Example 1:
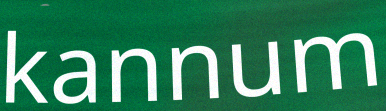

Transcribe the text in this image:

kannum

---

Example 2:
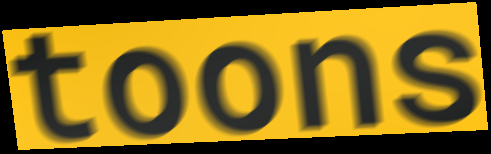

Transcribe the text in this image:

toons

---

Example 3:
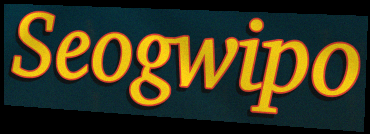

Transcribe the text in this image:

Seogwipo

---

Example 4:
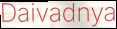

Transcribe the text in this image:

Daivadnya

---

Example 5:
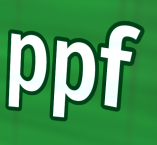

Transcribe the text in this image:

ppf